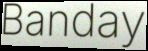
Banday